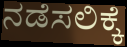
ನಡೆಸಲಿಕ್ಕೆ